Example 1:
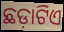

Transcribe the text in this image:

ଛଡ଼ାଟିଏ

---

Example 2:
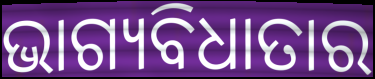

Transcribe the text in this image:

ଭାଗ୍ୟବିଧାତାର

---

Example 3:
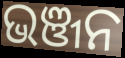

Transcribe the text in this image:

ଭଞ୍ଜନ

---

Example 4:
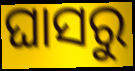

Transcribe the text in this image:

ଘାସରୁ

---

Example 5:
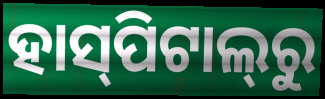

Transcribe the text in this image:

ହାସ୍‍ପିଟାଲ୍‍ରୁ